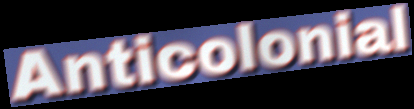
Anticolonial